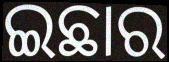
ଇଛାର